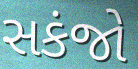
સકંજો